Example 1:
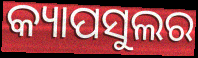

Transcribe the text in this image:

କ୍ୟାପସୁଲର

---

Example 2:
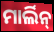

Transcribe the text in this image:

ମାର୍ଲିନ୍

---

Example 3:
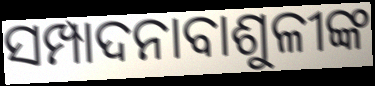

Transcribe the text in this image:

ସମ୍ପାଦନାବାଶୁଳୀଙ୍କ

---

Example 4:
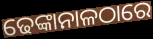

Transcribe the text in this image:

ଢେଙ୍କାନାଳଠାରେ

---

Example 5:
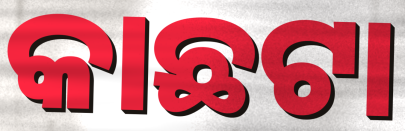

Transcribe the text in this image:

କାଛଟା